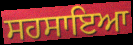
ਸਹਸਾਇਆ